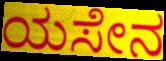
ಯಸೇನ